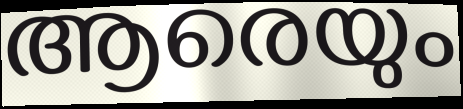
ആരെയും